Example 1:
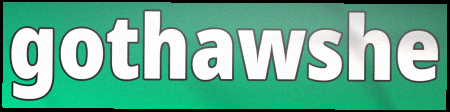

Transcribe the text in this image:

gothawshe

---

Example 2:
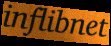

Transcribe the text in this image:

inflibnet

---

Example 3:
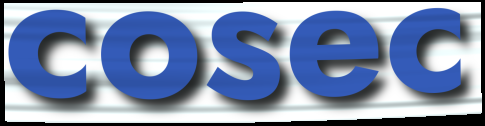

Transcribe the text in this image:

cosec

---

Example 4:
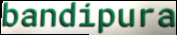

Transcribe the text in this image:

bandipura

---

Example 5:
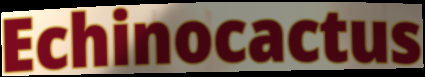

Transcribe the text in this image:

Echinocactus